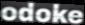
odoke